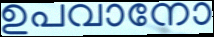
ഉപവാനോ